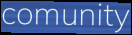
comunity